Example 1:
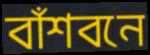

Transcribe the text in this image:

বাঁশবনে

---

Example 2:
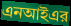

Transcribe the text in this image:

এনআইএর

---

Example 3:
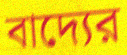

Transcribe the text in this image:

বাদ্যের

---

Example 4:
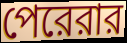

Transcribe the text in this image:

পেরেরার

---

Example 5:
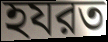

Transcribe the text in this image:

হযরত